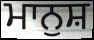
ਮਾਨੁਸ਼